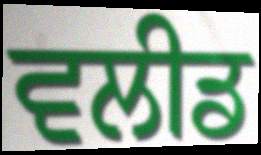
ਵਲੀਡ